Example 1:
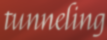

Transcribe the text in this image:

tunneling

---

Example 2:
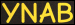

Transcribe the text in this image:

YNAB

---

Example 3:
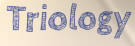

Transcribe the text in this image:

Triology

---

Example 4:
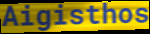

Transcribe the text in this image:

Aigisthos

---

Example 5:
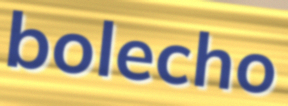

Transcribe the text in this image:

bolecho